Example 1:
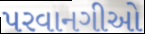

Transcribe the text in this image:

પરવાનગીઓ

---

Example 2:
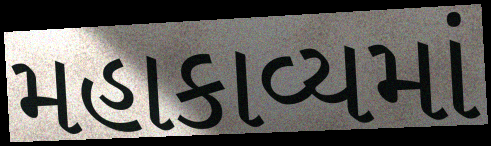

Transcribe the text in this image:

મહાકાવ્યમાં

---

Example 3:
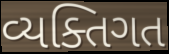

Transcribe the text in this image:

વ્યક્તિગત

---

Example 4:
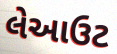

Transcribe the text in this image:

લેઆઉટ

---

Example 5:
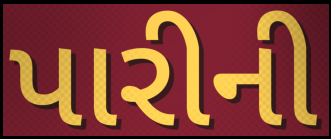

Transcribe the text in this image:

પારીની